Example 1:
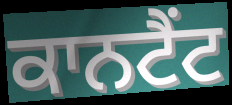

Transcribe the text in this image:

ਕਾਨਟੈਂਟ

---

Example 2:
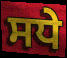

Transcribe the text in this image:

ਸਧੇ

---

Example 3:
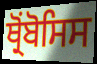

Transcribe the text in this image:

ਥ੍ਰੋਂਬੋਸਿਸ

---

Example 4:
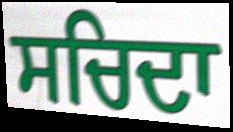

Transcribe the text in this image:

ਸਚਿਦਾ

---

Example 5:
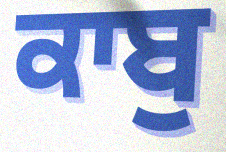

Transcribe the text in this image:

ਕਾਬੁ